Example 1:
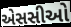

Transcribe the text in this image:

એસસીઓ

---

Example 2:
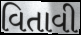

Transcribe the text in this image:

વિતાવી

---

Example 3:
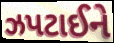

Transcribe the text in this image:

ઝપટાઈને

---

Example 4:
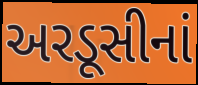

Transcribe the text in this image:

અરડૂસીનાં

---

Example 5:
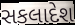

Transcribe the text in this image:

સકલાદેશ